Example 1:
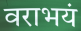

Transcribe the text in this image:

वराभयं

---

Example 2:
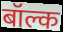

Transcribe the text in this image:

बॉल्क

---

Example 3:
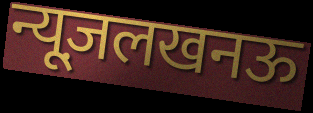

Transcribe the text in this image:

न्यूज़लखनऊ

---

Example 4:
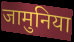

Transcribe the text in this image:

जामुनिया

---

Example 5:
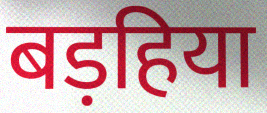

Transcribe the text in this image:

बड़हिया